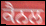
ਕੈਨਲ